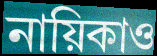
নায়িকাও